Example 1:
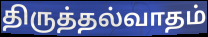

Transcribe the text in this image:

திருத்தல்வாதம்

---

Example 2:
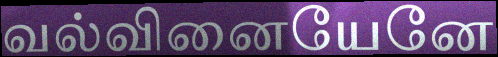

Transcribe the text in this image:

வல்வினையேனே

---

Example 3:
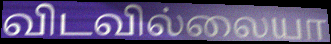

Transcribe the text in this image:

விடவில்லையா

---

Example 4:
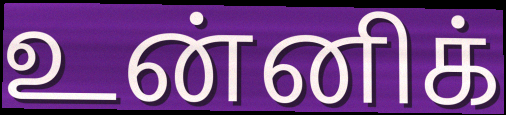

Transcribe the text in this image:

உன்னிக்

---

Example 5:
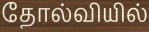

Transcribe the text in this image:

தோல்வியில்